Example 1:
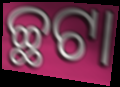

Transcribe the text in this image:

ଚ୍ଛଟା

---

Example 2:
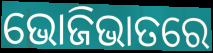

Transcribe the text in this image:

ଭୋଜିଭାତରେ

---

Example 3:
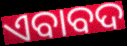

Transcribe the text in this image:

ଏବାବଦ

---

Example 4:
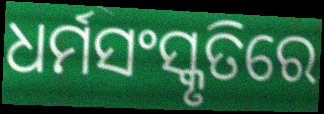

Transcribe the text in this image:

ଧର୍ମସଂସ୍କୃତିରେ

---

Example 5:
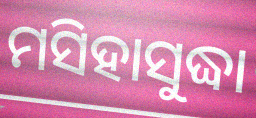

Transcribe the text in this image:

ମସିହାସୁଦ୍ଧା